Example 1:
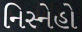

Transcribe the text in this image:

નિસ્નેહો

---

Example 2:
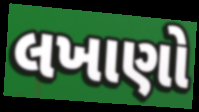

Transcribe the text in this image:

લખાણો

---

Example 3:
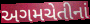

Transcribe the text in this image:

અગમચેતીનાં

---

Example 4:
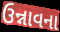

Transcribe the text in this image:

ઉન્નાવના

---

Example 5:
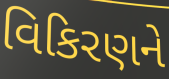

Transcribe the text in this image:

વિકિરણને